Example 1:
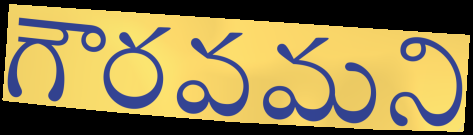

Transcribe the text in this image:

గౌరవమని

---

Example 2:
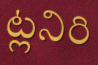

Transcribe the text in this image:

ట్లనిరి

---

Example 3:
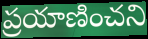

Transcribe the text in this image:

ప్రయాణించని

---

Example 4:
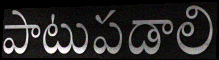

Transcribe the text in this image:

పాటుపడాలి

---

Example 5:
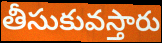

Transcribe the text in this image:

తీసుకువస్తారు